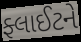
ફ્લાઈટને